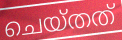
ചെയ്തത്